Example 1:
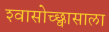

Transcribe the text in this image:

श्वासोच्छ्वासाला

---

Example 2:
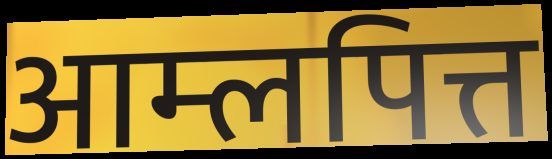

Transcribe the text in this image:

आम्लपित्त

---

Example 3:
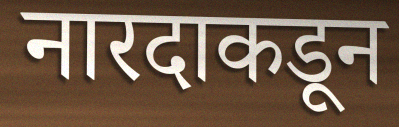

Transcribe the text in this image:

नारदाकडून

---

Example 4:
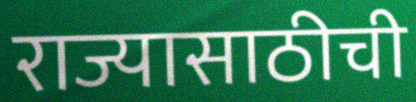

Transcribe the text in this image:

राज्यासाठीची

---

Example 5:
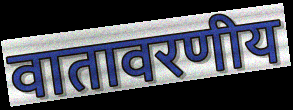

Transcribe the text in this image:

वातावरणीय